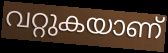
വറ്റുകയാണ്